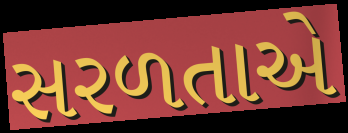
સરળતાએ